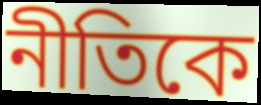
নীতিকে